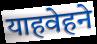
याहवेहने